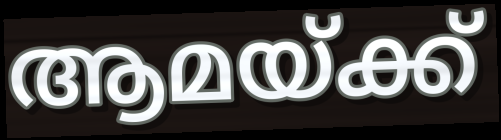
ആമയ്ക്ക്